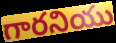
గారనియు